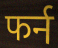
फर्न